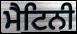
ਮੈਟਿਨੀ